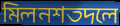
মিলনশতদলে